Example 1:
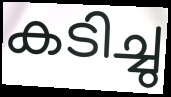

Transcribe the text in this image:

കടിച്ചു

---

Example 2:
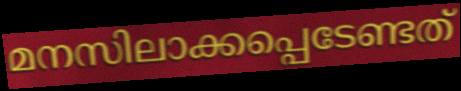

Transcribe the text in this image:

മനസിലാക്കപ്പെടേണ്ടത്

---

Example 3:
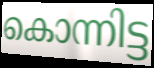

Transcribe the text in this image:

കൊന്നിട്ട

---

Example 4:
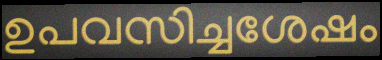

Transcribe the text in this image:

ഉപവസിച്ചശേഷം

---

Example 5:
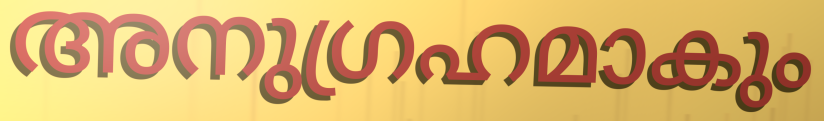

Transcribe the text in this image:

അനുഗ്രഹമാകും